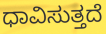
ಧಾವಿಸುತ್ತದೆ